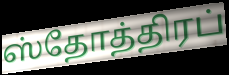
ஸ்தோத்திரப்